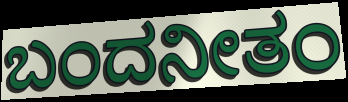
ಬಂದನೀತಂ